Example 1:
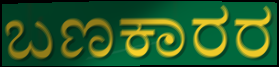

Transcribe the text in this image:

ಬಣಕಾರರ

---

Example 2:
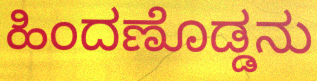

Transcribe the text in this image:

ಹಿಂದಣೊಡ್ಡನು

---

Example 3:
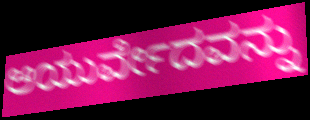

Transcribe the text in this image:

ಆಯುರ್ವೇದವನ್ನು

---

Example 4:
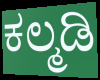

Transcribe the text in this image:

ಕಲ್ಮಡಿ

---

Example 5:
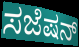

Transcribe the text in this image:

ಸಜೆಷನ್